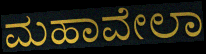
ಮಹಾವೇಲಾ